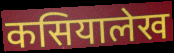
कसियालेख